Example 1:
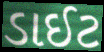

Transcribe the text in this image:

ડાઈટ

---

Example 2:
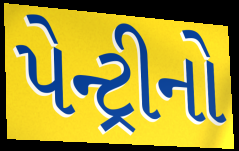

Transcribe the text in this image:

પેન્ટ્રીનો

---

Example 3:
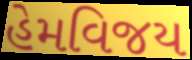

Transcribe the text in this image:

હેમવિજય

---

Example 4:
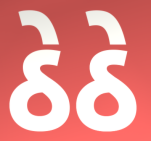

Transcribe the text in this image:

ઠેઠે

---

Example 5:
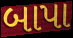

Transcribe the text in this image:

બાપા